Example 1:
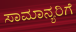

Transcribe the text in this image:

ಸಾಮಾನ್ಯರಿಗೆ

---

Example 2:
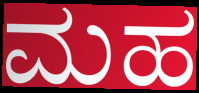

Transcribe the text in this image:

ಮಹ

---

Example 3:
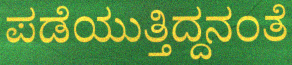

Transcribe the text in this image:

ಪಡೆಯುತ್ತಿದ್ದನಂತೆ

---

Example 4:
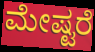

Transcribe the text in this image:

ಮೇಷ್ಟರೆ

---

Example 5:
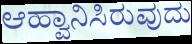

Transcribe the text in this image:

ಆಹ್ವಾನಿಸಿರುವುದು